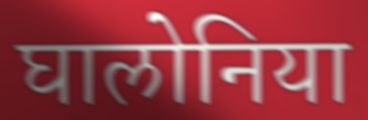
घालोनिया